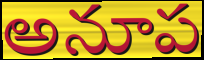
అనూప